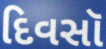
દિવસૉ